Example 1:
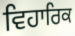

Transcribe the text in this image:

ਵਿਹਾਰਿਕ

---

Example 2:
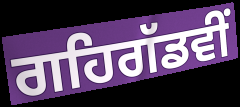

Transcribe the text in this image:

ਗਹਿਗੱਡਵੀਂ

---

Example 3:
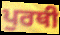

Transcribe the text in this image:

ਪੁਰਥੀ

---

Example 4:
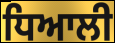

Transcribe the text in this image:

ਧਿਆਲੀ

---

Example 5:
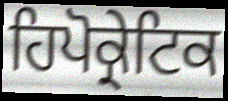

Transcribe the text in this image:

ਹਿਪੋਕ੍ਰੇਟਿਕ